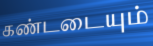
கண்டடையும்